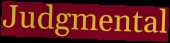
Judgmental